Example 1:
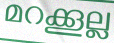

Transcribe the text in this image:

മറക്കൂല്ല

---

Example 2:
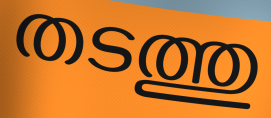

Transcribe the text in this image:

തടത്തു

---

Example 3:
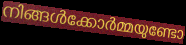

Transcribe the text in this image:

നിങ്ങൾക്കോർമ്മയുണ്ടോ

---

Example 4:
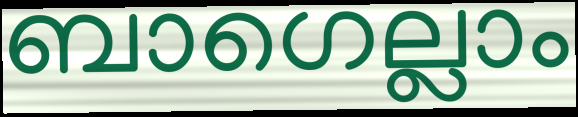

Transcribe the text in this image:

ബാഗെല്ലാം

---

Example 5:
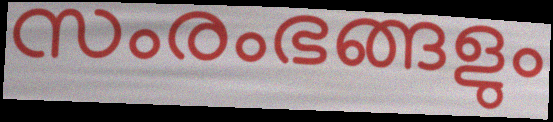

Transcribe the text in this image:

സംരംഭങ്ങളും